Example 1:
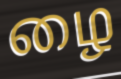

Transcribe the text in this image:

ழை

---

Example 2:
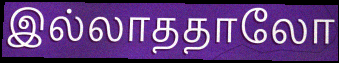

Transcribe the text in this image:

இல்லாததாலோ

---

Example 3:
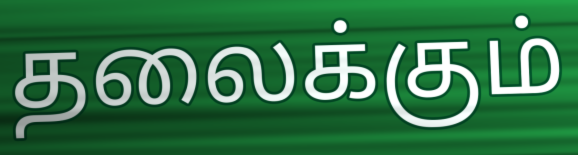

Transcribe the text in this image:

தலைக்கும்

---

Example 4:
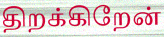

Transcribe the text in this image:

திறக்கிறேன்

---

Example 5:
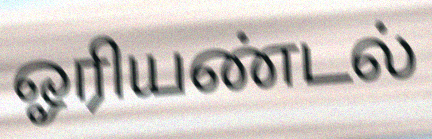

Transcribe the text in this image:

ஓரியண்டல்